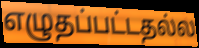
எழுதப்பட்டதல்ல